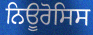
ਨਿਊਰੋਸਿਸ